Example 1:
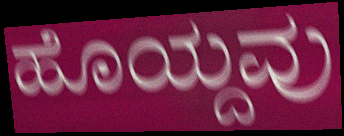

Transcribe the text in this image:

ಹೊಯ್ದವು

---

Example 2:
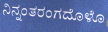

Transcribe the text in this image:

ನಿನ್ನಂತರಂಗದೊಳೊ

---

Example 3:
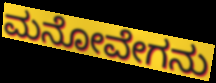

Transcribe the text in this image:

ಮನೋವೇಗನು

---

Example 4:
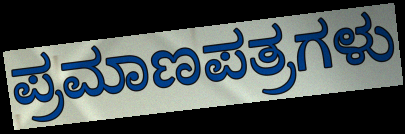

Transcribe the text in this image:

ಪ್ರಮಾಣಪತ್ರಗಳು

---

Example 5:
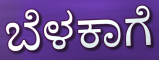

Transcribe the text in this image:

ಬೆಳಕಾಗೆ